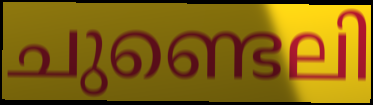
ചുണ്ടെലി